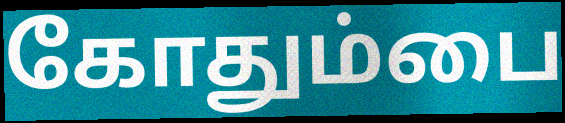
கோதும்பை